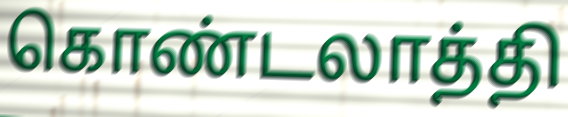
கொண்டலாத்தி